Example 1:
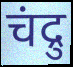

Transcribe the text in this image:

चंद्रु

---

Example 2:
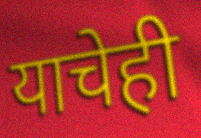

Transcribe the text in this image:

याचेही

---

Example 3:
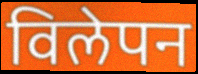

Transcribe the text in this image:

विलेपन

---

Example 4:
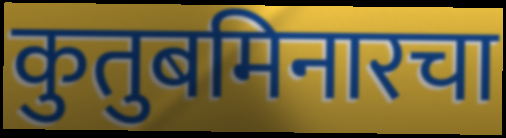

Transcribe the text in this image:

कुतुबमिनारचा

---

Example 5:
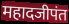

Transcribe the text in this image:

महादजीपंत